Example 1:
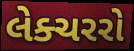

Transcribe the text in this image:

લેક્ચરરો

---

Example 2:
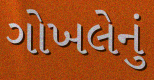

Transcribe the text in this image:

ગોખલેનું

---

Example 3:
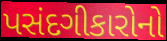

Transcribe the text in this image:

પસંદગીકારોનો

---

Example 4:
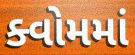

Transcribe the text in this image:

ક્વોમમાં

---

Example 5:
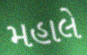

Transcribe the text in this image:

મહાલે